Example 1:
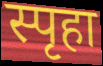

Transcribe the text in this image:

स्पृहा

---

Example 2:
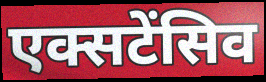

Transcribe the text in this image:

एक्सटेंसिव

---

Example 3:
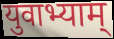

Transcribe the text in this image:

युवाभ्याम्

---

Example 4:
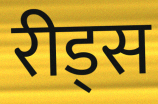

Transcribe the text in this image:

रीड्स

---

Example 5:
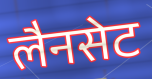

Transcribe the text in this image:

लैनसेट